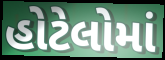
હોટેલોમાં